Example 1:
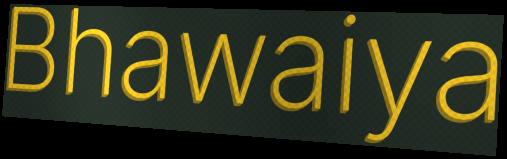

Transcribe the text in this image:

Bhawaiya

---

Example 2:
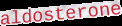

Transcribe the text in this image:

aldosterone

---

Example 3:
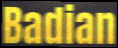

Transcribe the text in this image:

Badian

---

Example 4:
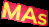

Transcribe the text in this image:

MAs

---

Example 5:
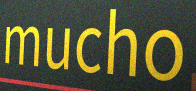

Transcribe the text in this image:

mucho